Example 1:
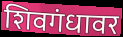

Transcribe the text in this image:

शिवगंधावर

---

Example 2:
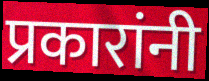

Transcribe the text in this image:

प्रकारांनी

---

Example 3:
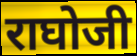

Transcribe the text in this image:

राघोजी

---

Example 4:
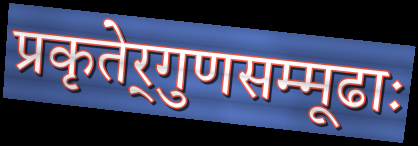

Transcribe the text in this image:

प्रकृतेर्गुणसम्मूढाः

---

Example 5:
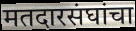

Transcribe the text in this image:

मतदारसंघांचा